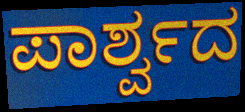
ಪಾರ್ಶ್ವದ